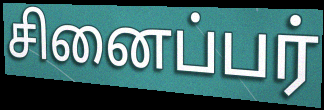
சினைப்பர்